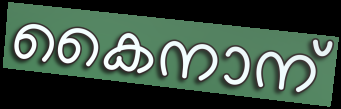
കൈനാന്